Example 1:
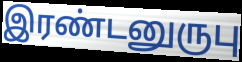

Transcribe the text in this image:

இரண்டனுருபு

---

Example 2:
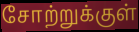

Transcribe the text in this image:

சோற்றுக்குள்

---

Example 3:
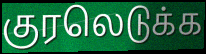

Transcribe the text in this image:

குரலெடுக்க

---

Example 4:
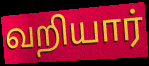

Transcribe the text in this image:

வறியார்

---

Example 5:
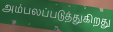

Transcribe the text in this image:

அம்பலப்படுத்துகிறது